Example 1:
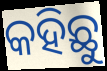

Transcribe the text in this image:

କହିଛୁ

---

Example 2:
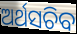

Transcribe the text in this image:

ଅର୍ଥସଚିବ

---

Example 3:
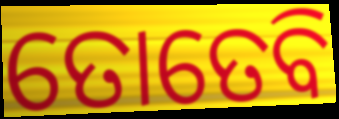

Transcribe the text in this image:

ତୋତେବି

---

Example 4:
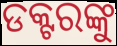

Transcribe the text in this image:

ଡକ୍ଟରଙ୍କୁ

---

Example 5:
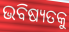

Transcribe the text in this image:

ଭବିଷ୍ୟତକୁ